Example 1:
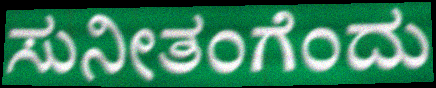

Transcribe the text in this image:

ಸುನೀತಂಗೆಂದು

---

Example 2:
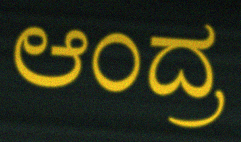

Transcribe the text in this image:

ಆಂದ್ರ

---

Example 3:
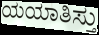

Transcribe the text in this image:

ಯಯಾತಿಸ್ತು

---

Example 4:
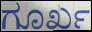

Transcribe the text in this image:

ಗೂರ್ಖ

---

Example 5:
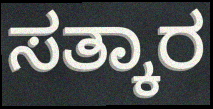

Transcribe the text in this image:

ಸತ್ಕಾರ